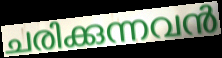
ചരിക്കുന്നവൻ